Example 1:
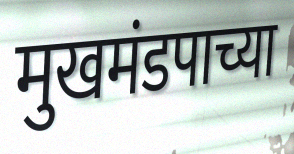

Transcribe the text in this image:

मुखमंडपाच्या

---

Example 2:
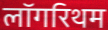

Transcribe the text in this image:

लॉगरिथम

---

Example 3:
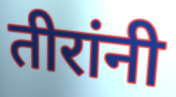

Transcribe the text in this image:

तीरांनी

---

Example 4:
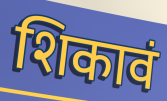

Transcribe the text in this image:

शिकावं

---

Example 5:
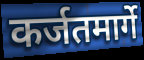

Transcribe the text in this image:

कर्जतमार्गे